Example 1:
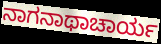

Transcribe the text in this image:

ನಾಗನಾಥಾಚಾರ್ಯ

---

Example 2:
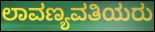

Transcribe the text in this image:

ಲಾವಣ್ಯವತಿಯರು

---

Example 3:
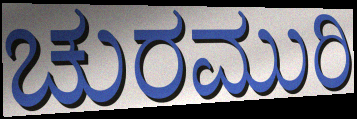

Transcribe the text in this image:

ಚುರಮುರಿ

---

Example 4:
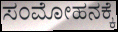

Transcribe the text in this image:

ಸಂಮೋಹನಕ್ಕೆ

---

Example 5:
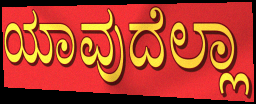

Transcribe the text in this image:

ಯಾವುದೆಲ್ಲಾ